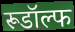
रूडॉल्फ